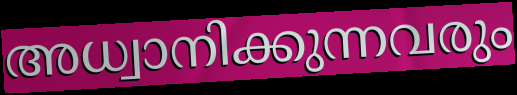
അധ്വാനിക്കുന്നവരും